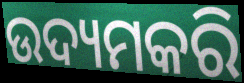
ଉଦ୍ୟମକରି